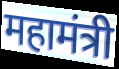
महामंत्री